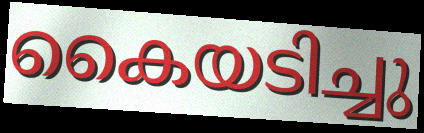
കൈയടിച്ചു